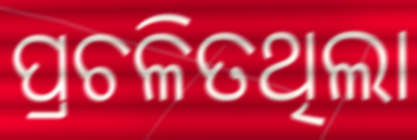
ପ୍ରଚଳିତଥିଲା